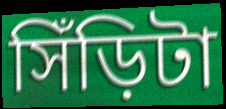
সিঁড়িটা